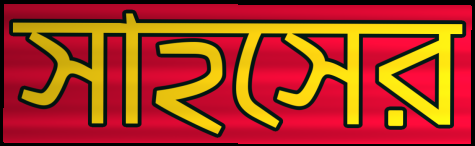
সাহসের